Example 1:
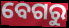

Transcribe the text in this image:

ବେଗରୁ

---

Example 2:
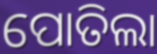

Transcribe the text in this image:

ପୋତିଲା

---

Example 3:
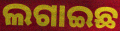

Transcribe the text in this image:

ଲଗାଇଛ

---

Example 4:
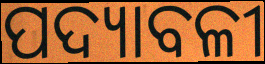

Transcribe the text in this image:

ପଦ୍ୟାବଳୀ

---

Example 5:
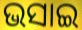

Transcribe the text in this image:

ଭସାଇ